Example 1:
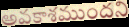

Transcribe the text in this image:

అవకాశముందని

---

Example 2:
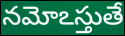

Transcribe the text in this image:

నమోఽస్తుతే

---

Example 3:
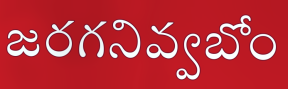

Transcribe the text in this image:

జరగనివ్వబోం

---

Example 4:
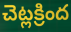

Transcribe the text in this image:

చెట్లక్రింద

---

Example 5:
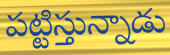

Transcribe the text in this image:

పట్టిస్తున్నాడు